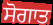
ਸੋਗਾਤ